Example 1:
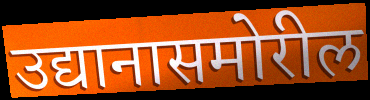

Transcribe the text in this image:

उद्यानासमोरील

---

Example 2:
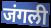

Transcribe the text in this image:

जंगली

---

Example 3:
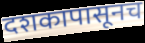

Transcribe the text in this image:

दशकापासूनच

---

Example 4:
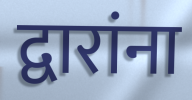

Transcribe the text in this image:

द्वारांना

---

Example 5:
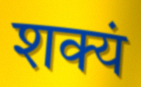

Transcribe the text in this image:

शक्यं